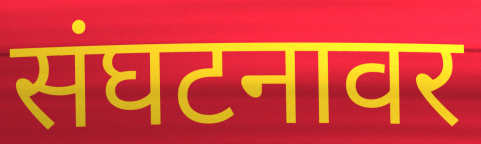
संघटनावर